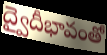
ద్వైదీభావంతో